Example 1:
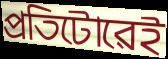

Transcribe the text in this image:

প্ৰতিটোৱেই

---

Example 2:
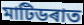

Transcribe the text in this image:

মাটিডৰাত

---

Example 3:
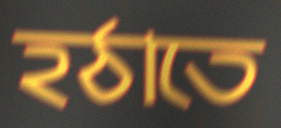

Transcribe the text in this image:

হঠাতে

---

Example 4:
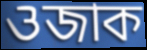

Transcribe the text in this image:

ওজাক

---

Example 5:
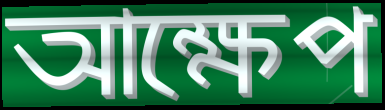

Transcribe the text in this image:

আক্ষেপ